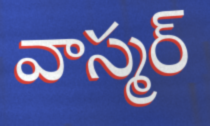
వాస్మర్